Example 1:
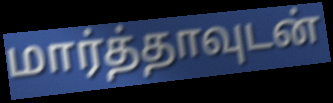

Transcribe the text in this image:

மார்த்தாவுடன்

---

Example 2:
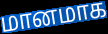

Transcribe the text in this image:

மானமாக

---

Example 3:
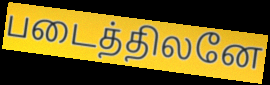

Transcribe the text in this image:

படைத்திலனே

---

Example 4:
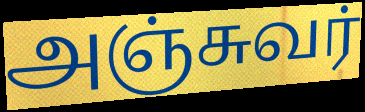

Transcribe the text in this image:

அஞ்சுவர்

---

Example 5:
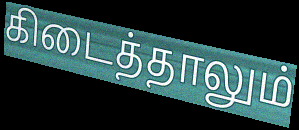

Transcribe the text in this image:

கிடைத்தாலும்